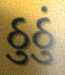
ઠુઠું